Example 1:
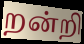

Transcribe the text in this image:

றன்றி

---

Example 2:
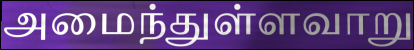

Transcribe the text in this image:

அமைந்துள்ளவாறு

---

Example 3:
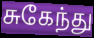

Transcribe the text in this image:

சுகேந்து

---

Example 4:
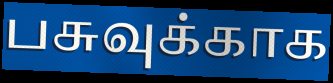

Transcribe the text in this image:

பசுவுக்காக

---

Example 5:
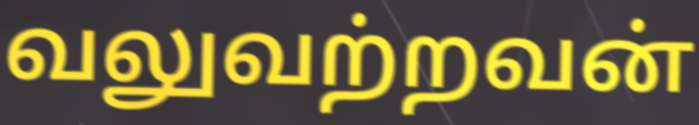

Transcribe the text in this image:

வலுவற்றவன்